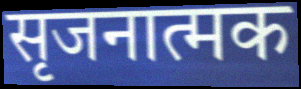
सृजनात्मक